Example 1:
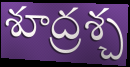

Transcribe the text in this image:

శూద్రశ్చ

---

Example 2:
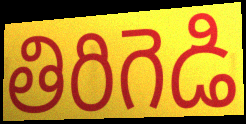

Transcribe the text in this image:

తిరిగెడి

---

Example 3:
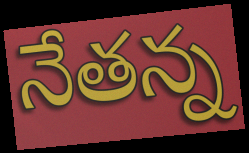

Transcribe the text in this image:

నేతన్న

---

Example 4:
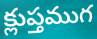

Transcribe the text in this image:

క్లుప్తముగ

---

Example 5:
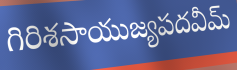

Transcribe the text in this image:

గిరిశసాయుజ్యపదవీమ్